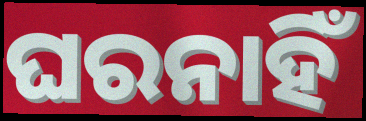
ଘରନାହିଁ